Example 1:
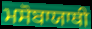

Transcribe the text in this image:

ਮਸੋਬਾਯਾਥੀ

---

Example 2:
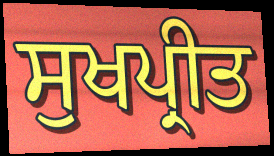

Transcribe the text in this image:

ਸੁਖਪ੍ਰੀਤ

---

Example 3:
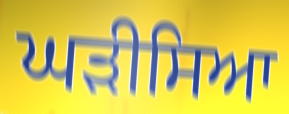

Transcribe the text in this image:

ਘੜੀਸਿਆ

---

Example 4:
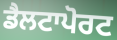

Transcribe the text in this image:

ਡੈਲਟਾਪੋਰਟ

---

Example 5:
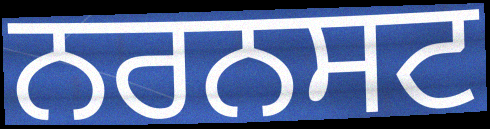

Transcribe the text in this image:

ਨਰਨਸਟ